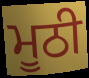
ਮੂਠੀ